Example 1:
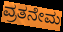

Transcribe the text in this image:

ವ್ರತನೇಮ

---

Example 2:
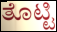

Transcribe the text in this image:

ತೊಟ್ಟಿ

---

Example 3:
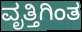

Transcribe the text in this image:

ವೃತ್ತಿಗಿಂತ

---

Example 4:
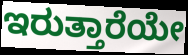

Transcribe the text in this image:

ಇರುತ್ತಾರೆಯೇ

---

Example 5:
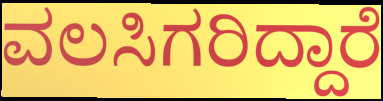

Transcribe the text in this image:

ವಲಸಿಗರಿದ್ದಾರೆ